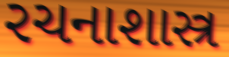
રચનાશાસ્ત્ર